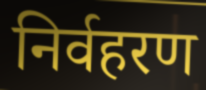
निर्वहरण